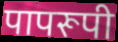
पापरूपी